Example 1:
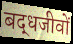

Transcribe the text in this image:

बद्धजीवों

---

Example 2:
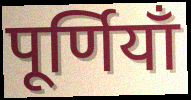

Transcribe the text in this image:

पूर्णियाँ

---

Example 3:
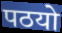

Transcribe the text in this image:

पठयो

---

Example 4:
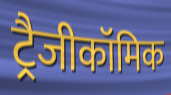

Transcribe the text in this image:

ट्रैजीकॉमिक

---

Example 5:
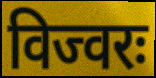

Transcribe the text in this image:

विज्वरः